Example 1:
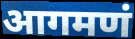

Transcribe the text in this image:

आगमणं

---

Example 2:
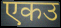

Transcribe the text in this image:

एकउ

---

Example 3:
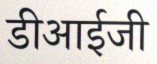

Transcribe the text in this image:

डीआईजी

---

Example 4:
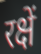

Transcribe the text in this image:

रक्षें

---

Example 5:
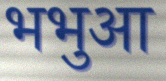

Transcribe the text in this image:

भभुआ